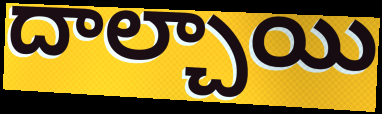
దాల్చాయి